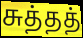
சுத்தத்